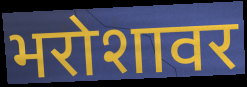
भरोशावर